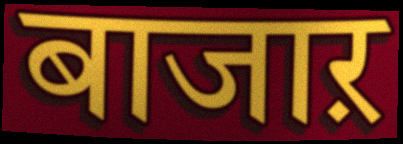
बाजाऱ